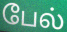
பேல்